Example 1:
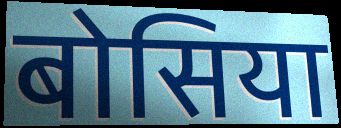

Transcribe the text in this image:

बोसिया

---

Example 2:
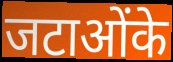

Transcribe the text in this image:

जटाओंके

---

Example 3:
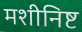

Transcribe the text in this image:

मशीनिष्ट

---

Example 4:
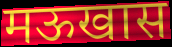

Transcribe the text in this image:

मऊखास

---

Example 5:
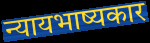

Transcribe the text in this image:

न्यायभाष्यकार